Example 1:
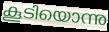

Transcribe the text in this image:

കൂടിയൊന്നു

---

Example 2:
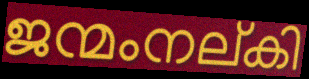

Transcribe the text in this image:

ജന്മംനല്കി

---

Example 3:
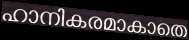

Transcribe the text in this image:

ഹാനികരമാകാതെ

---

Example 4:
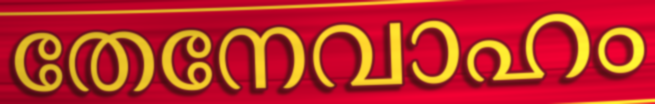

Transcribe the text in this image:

തേനേവാഹം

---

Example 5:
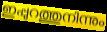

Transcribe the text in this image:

ഇപ്പുറത്തുനിന്നും